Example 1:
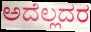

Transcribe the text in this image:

ಅದೆಲ್ಲದರ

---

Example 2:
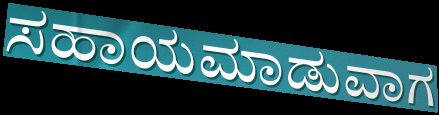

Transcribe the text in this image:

ಸಹಾಯಮಾಡುವಾಗ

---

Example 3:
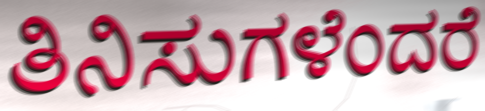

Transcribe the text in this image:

ತಿನಿಸುಗಳೆಂದರೆ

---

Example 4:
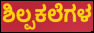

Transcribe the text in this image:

ಶಿಲ್ಪಕಲೆಗಳ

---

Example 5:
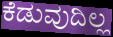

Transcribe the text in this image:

ಕೆಡುವುದಿಲ್ಲ